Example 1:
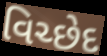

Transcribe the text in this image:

વિચ્છેદ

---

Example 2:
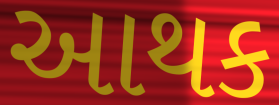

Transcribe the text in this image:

આથક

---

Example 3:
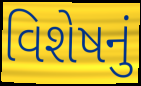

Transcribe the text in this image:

વિશેષનું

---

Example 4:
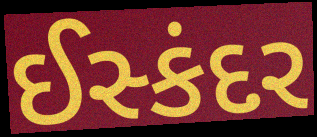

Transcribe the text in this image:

ઈસ્કંદર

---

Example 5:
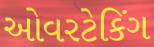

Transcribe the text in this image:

ઓવરટેકિંગ